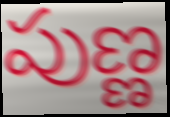
పుణ్ణ